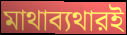
মাথাব্যথারই